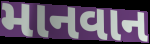
માનવાન